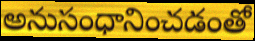
అనుసంధానించడంతో